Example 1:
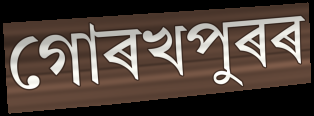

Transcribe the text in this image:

গোৰখপুৰৰ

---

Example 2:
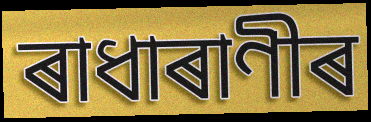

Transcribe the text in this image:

ৰাধাৰাণীৰ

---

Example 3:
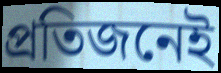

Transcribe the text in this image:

প্ৰতিজনেই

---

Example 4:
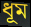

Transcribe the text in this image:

ধূম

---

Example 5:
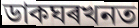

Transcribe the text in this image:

ডাকঘৰখনত